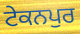
ਟੇਕਨਪੁਰ